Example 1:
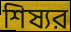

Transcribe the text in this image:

শিষ্যর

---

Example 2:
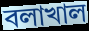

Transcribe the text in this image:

বলাখাল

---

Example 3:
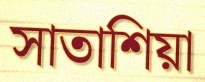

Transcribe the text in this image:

সাতাশিয়া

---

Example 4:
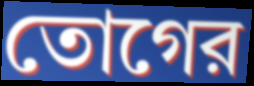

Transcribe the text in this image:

তোগের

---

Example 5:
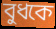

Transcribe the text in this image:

বুধকে